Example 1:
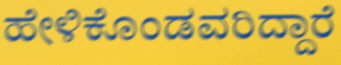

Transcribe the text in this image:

ಹೇಳಿಕೊಂಡವರಿದ್ದಾರೆ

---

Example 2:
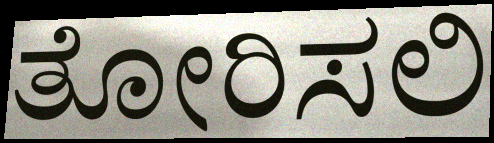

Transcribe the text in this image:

ತೋರಿಸಲಿ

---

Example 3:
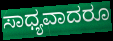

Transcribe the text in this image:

ಸಾಧ್ಯವಾದರೂ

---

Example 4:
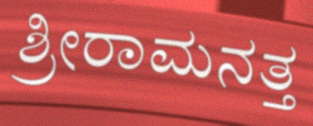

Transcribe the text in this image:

ಶ್ರೀರಾಮನತ್ತ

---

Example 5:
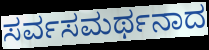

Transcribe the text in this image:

ಸರ್ವಸಮರ್ಥನಾದ